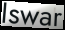
Iswar